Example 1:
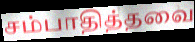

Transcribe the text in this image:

சம்பாதித்தவை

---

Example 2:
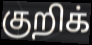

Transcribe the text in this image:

குறிக்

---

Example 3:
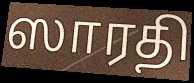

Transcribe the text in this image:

ஸாரதி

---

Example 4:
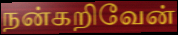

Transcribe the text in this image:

நன்கறிவேன்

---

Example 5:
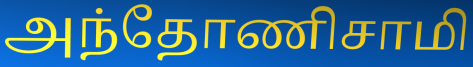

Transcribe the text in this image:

அந்தோணிசாமி